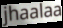
jhaalaa